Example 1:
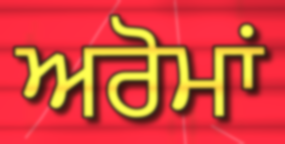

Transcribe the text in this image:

ਅਰੋਮਾਂ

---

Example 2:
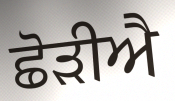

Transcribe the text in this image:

ਛੋੜੀਐ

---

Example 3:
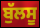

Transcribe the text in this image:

ਬੁੱਲਸੂ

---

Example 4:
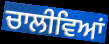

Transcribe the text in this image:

ਚਾਲੀਵਿਆਂ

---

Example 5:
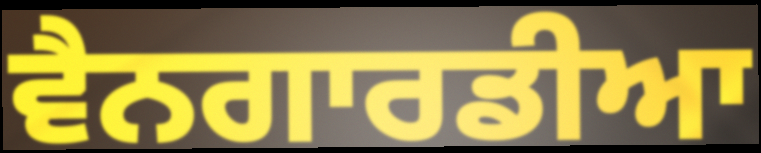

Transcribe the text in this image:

ਵੈਨਗਾਰਡੀਆ